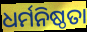
ଧର୍ମନିଷ୍ଠତା